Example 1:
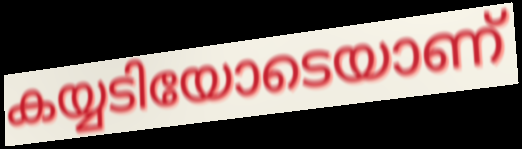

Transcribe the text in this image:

കയ്യടിയോടെയാണ്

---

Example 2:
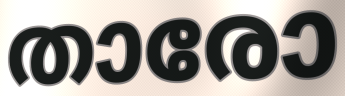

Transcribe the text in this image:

താരോ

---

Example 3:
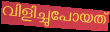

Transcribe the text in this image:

വിളിച്ചുപോയത്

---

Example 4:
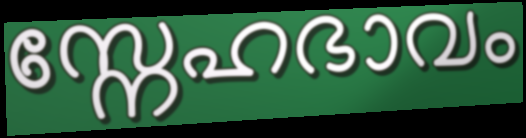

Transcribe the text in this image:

സ്നേഹഭാവം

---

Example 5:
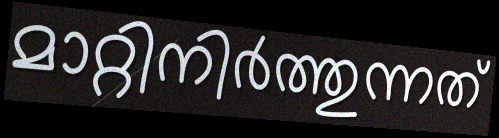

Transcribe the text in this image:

മാറ്റിനിർത്തുന്നത്